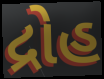
દ્રોહ